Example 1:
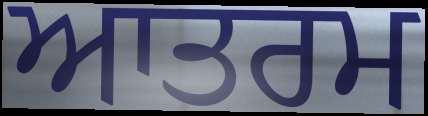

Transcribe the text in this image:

ਆਤਰਮ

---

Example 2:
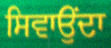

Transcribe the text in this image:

ਸਿਵਾਉਂਦਾ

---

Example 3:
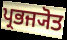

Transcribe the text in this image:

ਪ੍ਰਭਜ੍ਯੋਤ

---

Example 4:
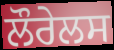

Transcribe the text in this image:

ਲੌਰੇਲਸ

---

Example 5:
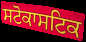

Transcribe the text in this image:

ਸਟੋਕਾਸਟਿਕ